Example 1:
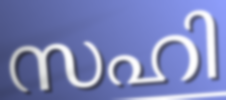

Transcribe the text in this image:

സഹി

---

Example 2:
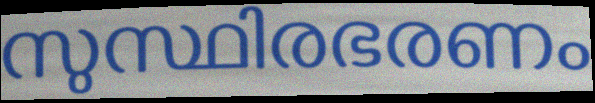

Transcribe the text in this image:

സുസ്ഥിരഭരണം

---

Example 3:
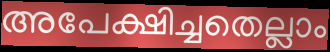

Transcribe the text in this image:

അപേക്ഷിച്ചതെല്ലാം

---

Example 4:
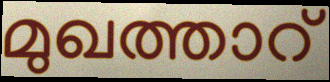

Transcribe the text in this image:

മുഖത്താറ്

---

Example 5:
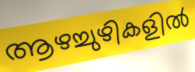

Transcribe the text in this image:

ആഴച്ചുഴികളിൽ